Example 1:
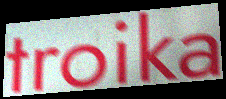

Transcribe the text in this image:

troika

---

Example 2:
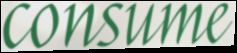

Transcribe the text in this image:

consume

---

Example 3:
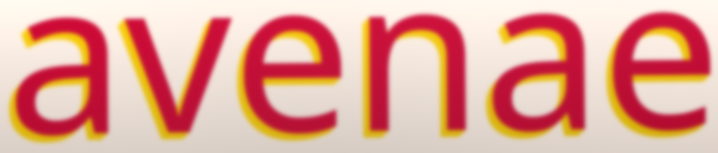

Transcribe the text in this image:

avenae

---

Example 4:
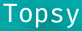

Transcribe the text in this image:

Topsy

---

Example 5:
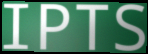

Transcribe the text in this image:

IPTS